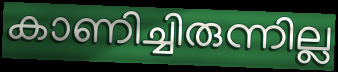
കാണിച്ചിരുന്നില്ല